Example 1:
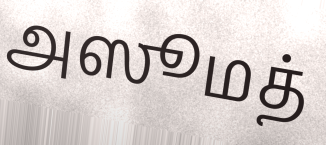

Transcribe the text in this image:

அஸூமத்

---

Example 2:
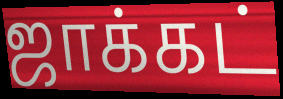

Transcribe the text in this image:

ஜாக்கட்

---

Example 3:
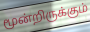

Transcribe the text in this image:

மூன்றிருக்கும்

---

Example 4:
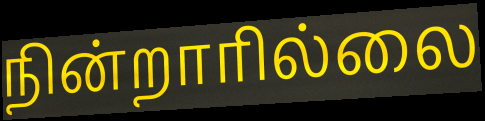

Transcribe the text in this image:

நின்றாரில்லை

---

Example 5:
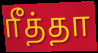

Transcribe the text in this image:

ரீத்தா